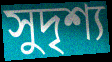
সুদৃশ্য